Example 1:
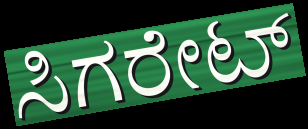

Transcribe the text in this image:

ಸಿಗರೇಟ್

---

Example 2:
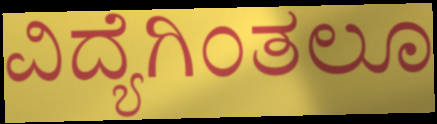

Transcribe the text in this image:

ವಿದ್ಯೆಗಿಂತಲೂ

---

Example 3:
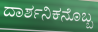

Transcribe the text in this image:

ದಾರ್ಶನಿಕನೊಬ್ಬ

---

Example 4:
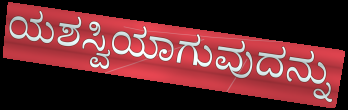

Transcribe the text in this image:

ಯಶಸ್ವಿಯಾಗುವುದನ್ನು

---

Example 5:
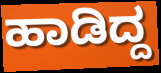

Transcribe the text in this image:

ಹಾಡಿದ್ದ